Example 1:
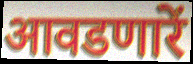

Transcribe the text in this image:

आवडणारें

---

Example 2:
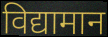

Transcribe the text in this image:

विद्यामान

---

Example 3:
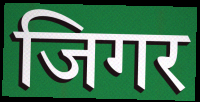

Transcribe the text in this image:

जिगर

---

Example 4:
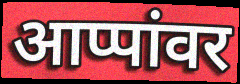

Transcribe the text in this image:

आप्पांवर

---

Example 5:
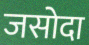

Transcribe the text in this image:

जसोदा